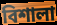
বিশালা